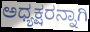
ಅಧ್ಯಕ್ಷರನ್ನಾಗಿ